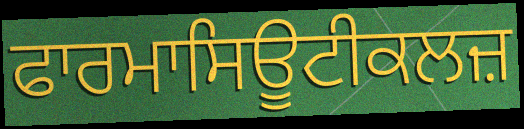
ਫਾਰਮਾਸਿਊਟੀਕਲਜ਼